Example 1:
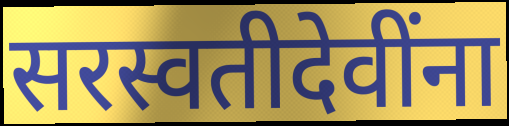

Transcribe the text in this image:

सरस्वतीदेवींना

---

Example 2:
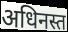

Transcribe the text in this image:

अधिनस्त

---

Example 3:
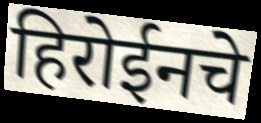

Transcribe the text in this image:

हिरोईनचे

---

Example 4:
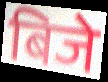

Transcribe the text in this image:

बिजे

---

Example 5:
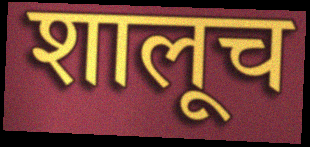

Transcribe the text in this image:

शालूच